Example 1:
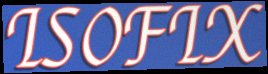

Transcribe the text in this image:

ISOFIX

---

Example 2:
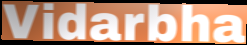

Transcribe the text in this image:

Vidarbha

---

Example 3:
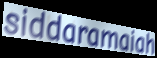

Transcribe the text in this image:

siddaramaiah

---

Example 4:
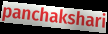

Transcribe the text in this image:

panchakshari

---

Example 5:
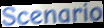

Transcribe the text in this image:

Scenario